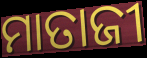
ମାତାଜୀ